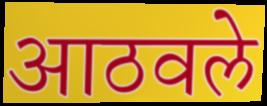
आठवले